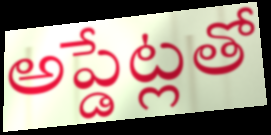
అప్డేట్లతో